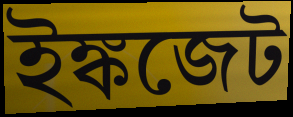
ইঙ্কজেট